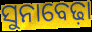
ସୁନାବେଢ଼ା